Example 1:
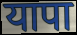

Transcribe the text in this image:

यापा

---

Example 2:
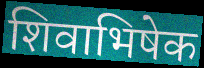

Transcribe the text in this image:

शिवाभिषेक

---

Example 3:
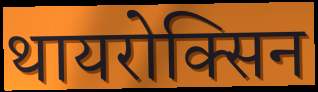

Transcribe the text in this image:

थायरोक्सिन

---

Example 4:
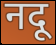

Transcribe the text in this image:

नदू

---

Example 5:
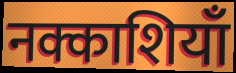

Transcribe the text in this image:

नक्काशियाँ